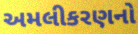
અમલીકરણનો